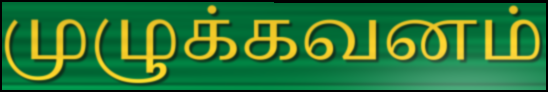
முழுக்கவனம்